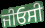
ਜੀਓਸੀ